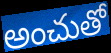
అంచుతో